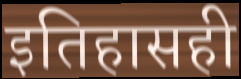
इतिहासही